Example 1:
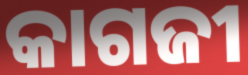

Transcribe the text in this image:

କାଗଜୀ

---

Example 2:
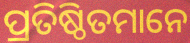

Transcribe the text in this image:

ପ୍ରତିଷ୍ଠିତମାନେ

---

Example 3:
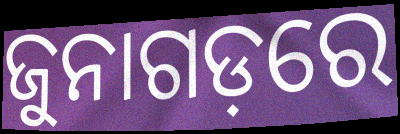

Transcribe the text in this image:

ଜୁନାଗଡ଼ରେ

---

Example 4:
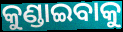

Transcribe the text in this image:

କୁଣ୍ଡାଇବାକୁ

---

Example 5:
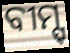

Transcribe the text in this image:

ବୀମ୍ସ୍